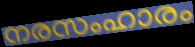
നരസംഹാരം